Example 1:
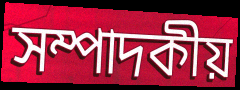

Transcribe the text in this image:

সম্পাদকীয়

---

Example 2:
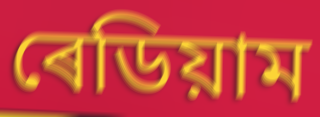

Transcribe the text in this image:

ৰেডিয়াম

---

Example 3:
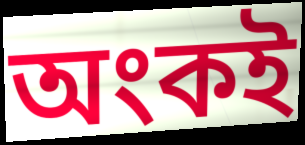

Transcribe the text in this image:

অংকই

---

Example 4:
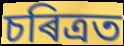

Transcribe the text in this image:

চৰিত্ৰত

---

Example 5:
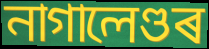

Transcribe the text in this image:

নাগালেণ্ডৰ